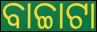
ବାଚ୍ଚାଟା